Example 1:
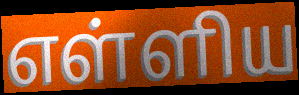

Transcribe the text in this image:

எள்ளிய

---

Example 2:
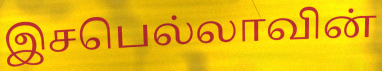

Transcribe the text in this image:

இசபெல்லாவின்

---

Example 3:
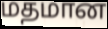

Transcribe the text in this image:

மதமான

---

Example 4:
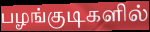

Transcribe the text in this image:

பழங்குடிகளில்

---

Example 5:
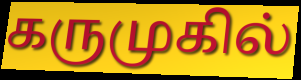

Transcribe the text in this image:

கருமுகில்